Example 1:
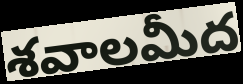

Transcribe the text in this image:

శవాలమీద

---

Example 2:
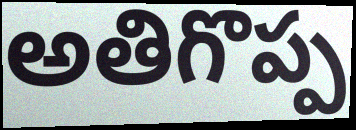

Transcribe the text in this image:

అతిగొప్ప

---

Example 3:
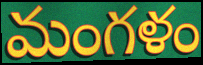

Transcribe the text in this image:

మంగళం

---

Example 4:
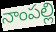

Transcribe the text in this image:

నాంపల్లి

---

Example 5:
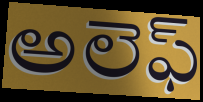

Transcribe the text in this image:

అలెఫ్